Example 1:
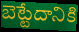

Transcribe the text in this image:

బెట్టేదానికి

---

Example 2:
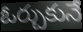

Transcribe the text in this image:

ఓర్చుకునే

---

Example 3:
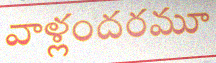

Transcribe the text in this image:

వాళ్లందరమూ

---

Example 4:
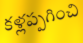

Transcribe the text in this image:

కళ్లప్పగించి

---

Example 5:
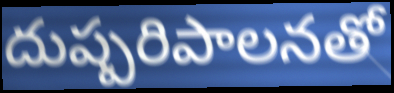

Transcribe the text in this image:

దుష్పరిపాలనతో